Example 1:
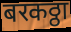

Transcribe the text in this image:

बरकठ्ठा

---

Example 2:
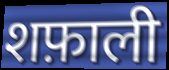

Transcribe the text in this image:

शफ़ाली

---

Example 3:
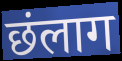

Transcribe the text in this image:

छंलाग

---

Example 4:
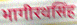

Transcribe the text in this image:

भागीरथसिंह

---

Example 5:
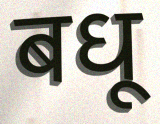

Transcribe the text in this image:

बधू